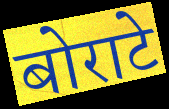
बोराटे